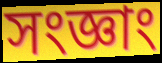
সংজ্ঞাং